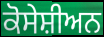
ਕੋਸੇਸ਼ੀਅਨ